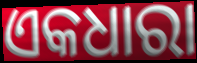
ଏକଧାରା